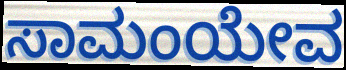
ಸಾಮಂಯೇವ